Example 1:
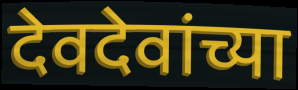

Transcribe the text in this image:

देवदेवांच्या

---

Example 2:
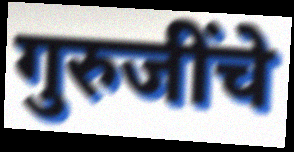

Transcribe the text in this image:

गुरुजींचे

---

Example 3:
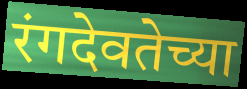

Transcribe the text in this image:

रंगदेवतेच्या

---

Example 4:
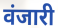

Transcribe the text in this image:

वंजारी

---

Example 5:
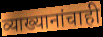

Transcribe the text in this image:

व्याख्यानांचाही